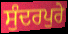
ਸੁੰਦਰਪੁਰੇ